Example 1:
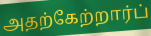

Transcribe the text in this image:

அதற்கேற்றார்ப்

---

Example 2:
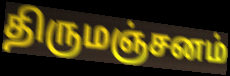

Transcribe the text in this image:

திருமஞ்சனம்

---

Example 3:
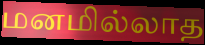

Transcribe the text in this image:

மனமில்லாத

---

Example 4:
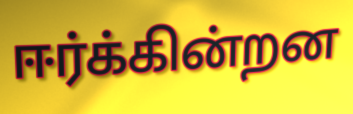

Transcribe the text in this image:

ஈர்க்கின்றன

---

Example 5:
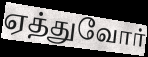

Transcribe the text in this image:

ஏத்துவோர்